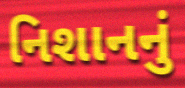
નિશાનનું